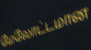
மேலோட்டமான